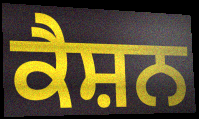
ਕੈਸ਼ਨ